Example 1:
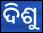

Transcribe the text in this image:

ଦିଶୁ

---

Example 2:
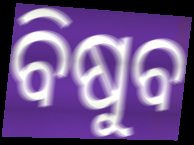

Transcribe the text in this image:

ବିଷୁବ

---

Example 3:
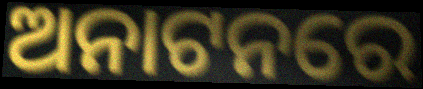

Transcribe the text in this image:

ଅନାଟନରେ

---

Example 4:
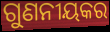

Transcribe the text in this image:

ଗୁଣନୀୟକର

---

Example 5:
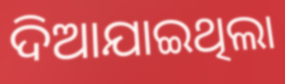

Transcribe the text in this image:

ଦିଆଯାଇଥିଲା